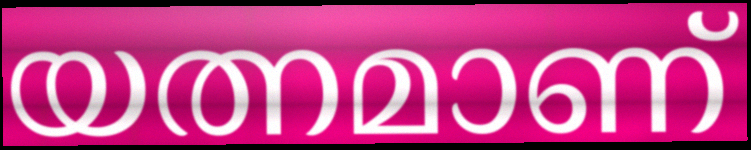
യത്നമാണ്